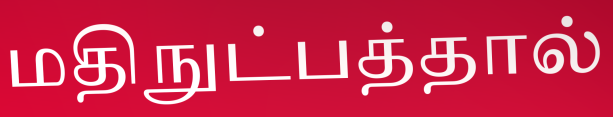
மதிநுட்பத்தால்